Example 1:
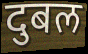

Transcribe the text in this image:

दुबल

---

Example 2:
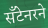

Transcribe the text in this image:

सँटेनरने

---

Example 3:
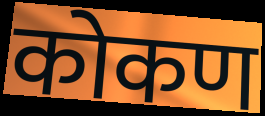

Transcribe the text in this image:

कोकण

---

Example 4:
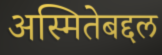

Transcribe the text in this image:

अस्मितेबद्दल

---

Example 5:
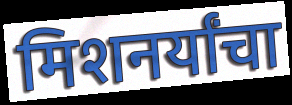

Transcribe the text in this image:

मिशनर्यांचा